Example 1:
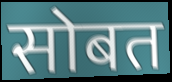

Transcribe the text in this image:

सोबत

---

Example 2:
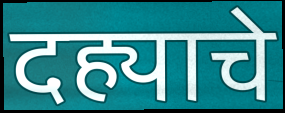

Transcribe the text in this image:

दह्याचे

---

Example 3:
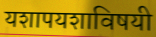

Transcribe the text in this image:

यशापयशाविषयी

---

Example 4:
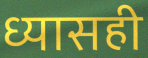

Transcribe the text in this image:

ध्यासही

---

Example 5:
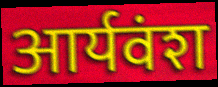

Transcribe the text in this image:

आर्यवंश